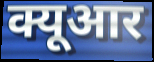
क्यूआर